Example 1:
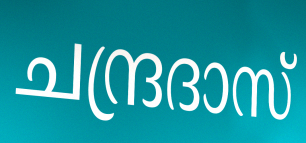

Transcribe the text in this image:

ചന്ദ്രദാസ്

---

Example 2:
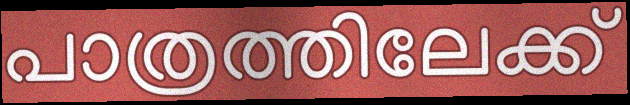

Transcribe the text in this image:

പാത്രത്തിലേക്ക്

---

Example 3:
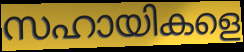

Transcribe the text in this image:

സഹായികളെ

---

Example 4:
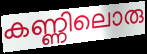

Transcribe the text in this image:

കണ്ണിലൊരു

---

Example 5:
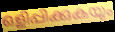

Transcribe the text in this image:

ഒളിപ്പിക്കുകയും